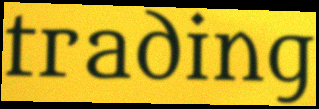
trading